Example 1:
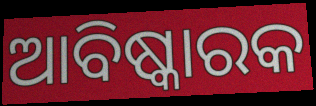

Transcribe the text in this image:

ଆବିଷ୍କାରକ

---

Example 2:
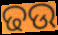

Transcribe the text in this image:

ଢଉ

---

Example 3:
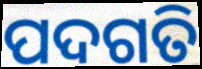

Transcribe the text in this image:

ପଦଗତି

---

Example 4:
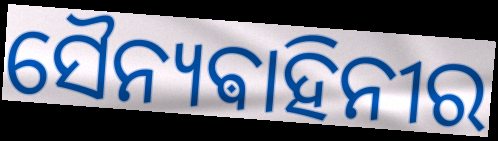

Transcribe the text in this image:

ସୈନ୍ୟଵାହିନୀର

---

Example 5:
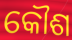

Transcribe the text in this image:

କୌଶ